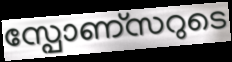
സ്പോണ്സറുടെ